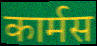
कार्मस